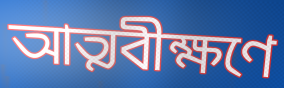
আত্মবীক্ষণে